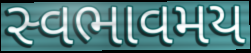
સ્વભાવમય